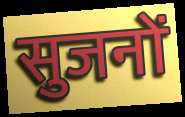
सुजनों